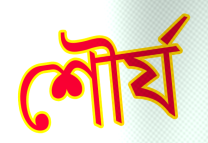
শৌর্য